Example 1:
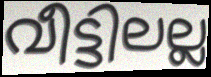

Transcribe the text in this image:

വീട്ടിലല്ല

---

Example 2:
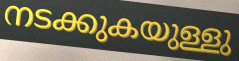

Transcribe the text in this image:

നടക്കുകയുള്ളു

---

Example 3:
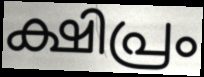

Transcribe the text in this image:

ക്ഷിപ്രം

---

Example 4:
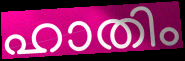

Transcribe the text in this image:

ഹാതിം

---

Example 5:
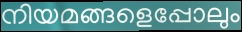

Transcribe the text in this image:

നിയമങ്ങളെപ്പോലും